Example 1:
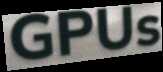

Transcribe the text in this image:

GPUs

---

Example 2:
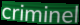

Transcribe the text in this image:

criminel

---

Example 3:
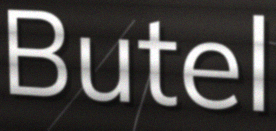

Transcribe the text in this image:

Butel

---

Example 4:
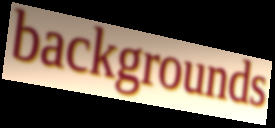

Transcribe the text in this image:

backgrounds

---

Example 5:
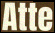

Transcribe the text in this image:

Atte